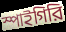
স্পাইগিরি